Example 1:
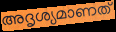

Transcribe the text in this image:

അദൃശ്യമാണത്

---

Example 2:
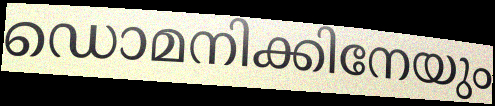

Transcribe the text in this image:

ഡൊമനിക്കിനേയും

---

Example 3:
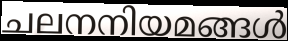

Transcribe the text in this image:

ചലനനിയമങ്ങൾ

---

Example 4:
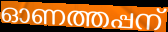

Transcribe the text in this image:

ഓണത്തപ്പന്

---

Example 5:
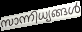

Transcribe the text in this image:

സാന്നിധ്യങ്ങൾ